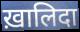
ख़ालिदा